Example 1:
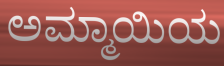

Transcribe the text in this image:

ಅಮ್ಮಾಯಿಯ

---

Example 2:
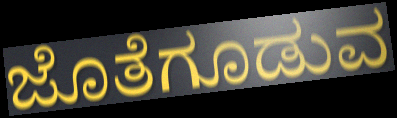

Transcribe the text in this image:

ಜೊತೆಗೂಡುವ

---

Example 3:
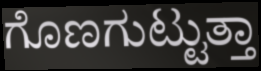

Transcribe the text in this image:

ಗೊಣಗುಟ್ಟುತ್ತಾ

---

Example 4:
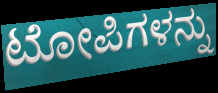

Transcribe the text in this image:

ಟೋಪಿಗಳನ್ನು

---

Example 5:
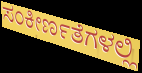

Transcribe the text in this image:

ಸಂಕೀರ್ಣತೆಗಳಲ್ಲಿ